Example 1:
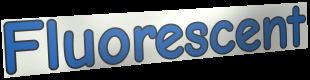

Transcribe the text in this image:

Fluorescent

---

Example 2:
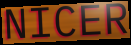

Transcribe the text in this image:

NICER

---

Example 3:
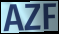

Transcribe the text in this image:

AZF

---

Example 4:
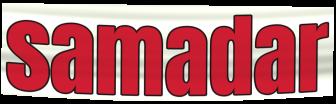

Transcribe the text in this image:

samadar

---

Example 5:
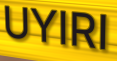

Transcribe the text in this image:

UYIRI